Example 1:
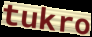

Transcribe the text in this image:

tukro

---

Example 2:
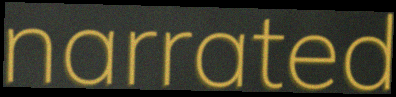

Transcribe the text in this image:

narrated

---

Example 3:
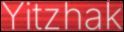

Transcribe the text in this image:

Yitzhak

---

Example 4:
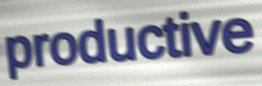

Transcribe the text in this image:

productive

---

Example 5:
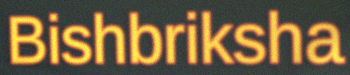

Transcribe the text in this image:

Bishbriksha